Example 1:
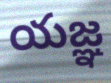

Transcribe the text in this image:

యజ్ఞ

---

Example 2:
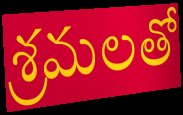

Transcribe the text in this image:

శ్రమలతో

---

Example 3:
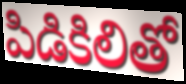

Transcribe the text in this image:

పిడికిలితో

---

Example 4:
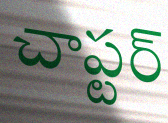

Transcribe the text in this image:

చాప్టర్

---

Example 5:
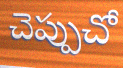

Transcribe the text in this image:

చెప్పుచో